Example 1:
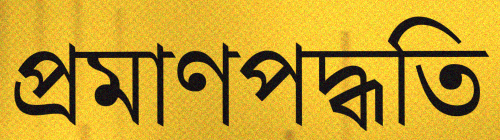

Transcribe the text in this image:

প্রমাণপদ্ধতি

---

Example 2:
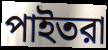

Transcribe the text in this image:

পাইতরা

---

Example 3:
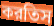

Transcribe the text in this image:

করতিস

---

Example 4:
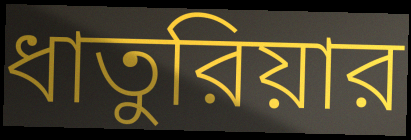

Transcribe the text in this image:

ধাতুরিয়ার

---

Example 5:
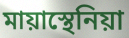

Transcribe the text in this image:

মায়াস্থেনিয়া